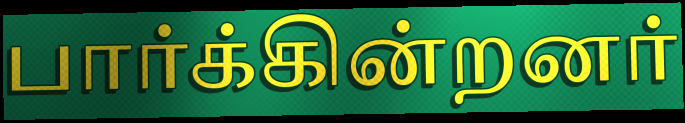
பார்க்கின்றனர்